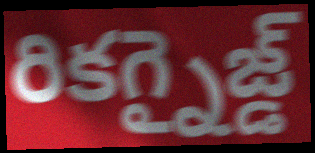
రికగ్నైజ్డ్